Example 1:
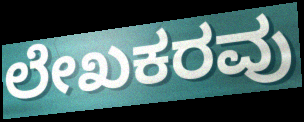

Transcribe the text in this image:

ಲೇಖಕರವು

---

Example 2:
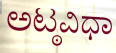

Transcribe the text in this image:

ಅಟ್ಠವಿಧಾ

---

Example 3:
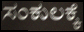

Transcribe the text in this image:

ಸಂಕುಲಕ್ಕೆ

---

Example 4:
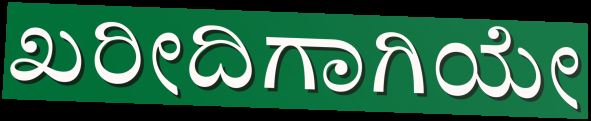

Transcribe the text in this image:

ಖರೀದಿಗಾಗಿಯೇ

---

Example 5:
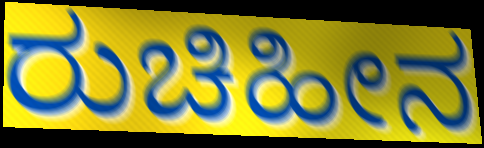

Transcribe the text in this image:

ರುಚಿಹೀನ